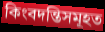
কিংবদন্তিসমূহত